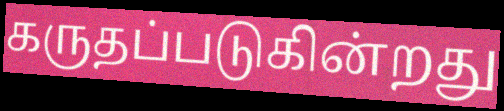
கருதப்படுகின்றது